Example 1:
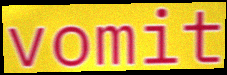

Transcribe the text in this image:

vomit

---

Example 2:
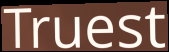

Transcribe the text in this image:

Truest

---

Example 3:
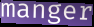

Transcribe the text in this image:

manger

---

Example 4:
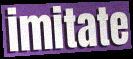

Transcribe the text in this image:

imitate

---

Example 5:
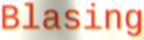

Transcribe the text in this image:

Blasing